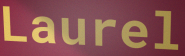
Laurel